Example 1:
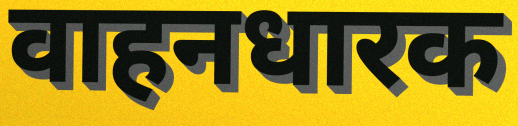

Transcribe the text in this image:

वाहनधारक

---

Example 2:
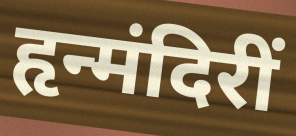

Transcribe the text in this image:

हृन्मंदिरीं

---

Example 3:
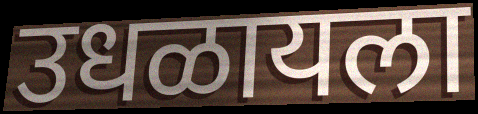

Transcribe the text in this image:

उधळायला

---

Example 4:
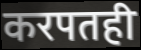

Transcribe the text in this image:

करपतही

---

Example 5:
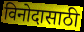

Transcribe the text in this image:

विनोदासाठी